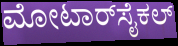
ಮೋಟಾರ್‌ಸೈಕಲ್